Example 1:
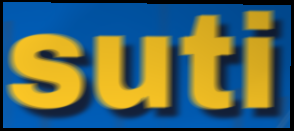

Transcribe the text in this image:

suti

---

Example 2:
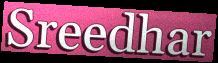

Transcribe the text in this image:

Sreedhar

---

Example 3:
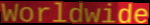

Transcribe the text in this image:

Worldwide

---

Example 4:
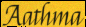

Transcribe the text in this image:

Aathma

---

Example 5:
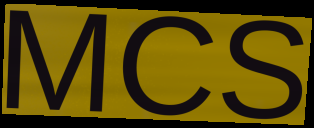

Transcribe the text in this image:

MCS